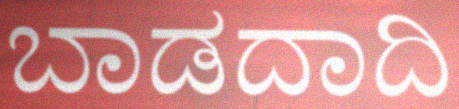
ಬಾಡದಾದಿ